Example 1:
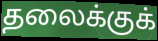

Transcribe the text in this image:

தலைக்குக்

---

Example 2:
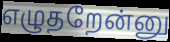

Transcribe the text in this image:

எழுதறேன்னு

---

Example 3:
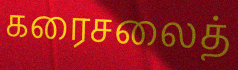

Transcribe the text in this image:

கரைசலைத்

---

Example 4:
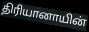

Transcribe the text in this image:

திரியானாயின்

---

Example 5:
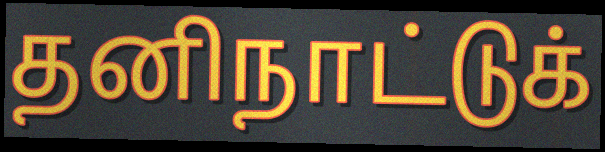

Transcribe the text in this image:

தனிநாட்டுக்